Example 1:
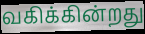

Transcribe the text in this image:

வகிக்கின்றது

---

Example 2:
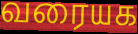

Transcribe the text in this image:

வரையக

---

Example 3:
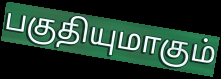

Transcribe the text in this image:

பகுதியுமாகும்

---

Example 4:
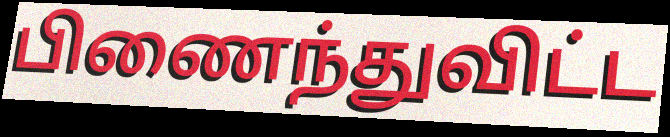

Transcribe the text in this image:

பிணைந்துவிட்ட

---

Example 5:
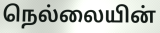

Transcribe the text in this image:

நெல்லையின்